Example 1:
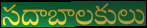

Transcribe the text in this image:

సదాబాలకులు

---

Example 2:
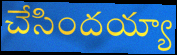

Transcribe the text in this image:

చేసిందయ్యా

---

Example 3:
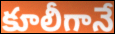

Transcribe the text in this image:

కూలీగానే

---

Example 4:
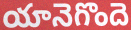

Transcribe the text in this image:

యానెగొందె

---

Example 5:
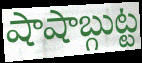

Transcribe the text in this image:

షాషాబ్గుట్ట